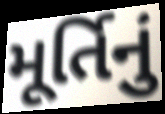
મૂર્તિનું